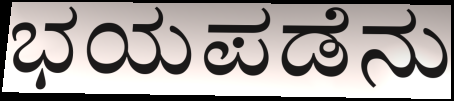
ಭಯಪಡೆನು